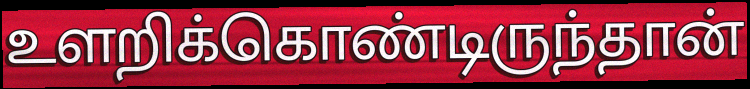
உளறிக்கொண்டிருந்தான்